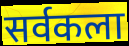
सर्वकला